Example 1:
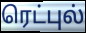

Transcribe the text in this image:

ரெட்புல்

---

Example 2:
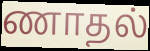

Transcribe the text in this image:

ணாதல்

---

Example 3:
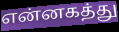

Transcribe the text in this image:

என்னகத்து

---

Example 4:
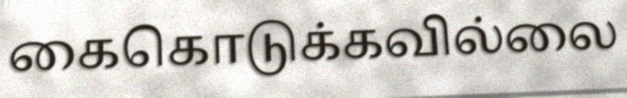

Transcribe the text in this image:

கைகொடுக்கவில்லை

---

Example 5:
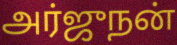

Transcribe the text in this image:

அர்ஜுநன்